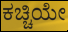
ಕಚ್ಚಿಯೇ